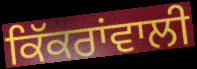
ਕਿੱਕਰਾਂਵਾਲੀ